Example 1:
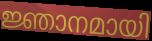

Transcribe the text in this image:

ജ്ഞാനമായി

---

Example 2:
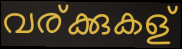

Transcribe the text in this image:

വര്ക്കുകള്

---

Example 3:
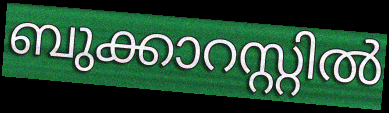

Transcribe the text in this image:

ബുക്കാറസ്റ്റിൽ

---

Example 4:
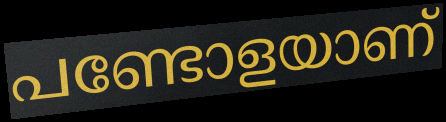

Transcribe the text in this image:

പണ്ടോളയാണ്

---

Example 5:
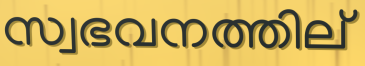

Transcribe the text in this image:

സ്വഭവനത്തില്